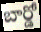
బార్డో